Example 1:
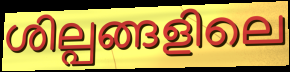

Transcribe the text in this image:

ശില്പങ്ങളിലെ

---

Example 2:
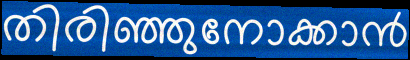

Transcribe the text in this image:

തിരിഞ്ഞുനോക്കാൻ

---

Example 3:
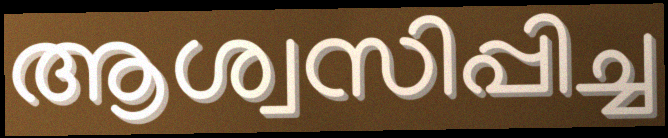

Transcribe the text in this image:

ആശ്വസിപ്പിച്ച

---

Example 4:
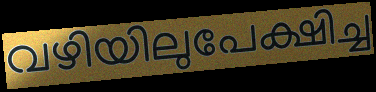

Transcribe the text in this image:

വഴിയിലുപേക്ഷിച്ച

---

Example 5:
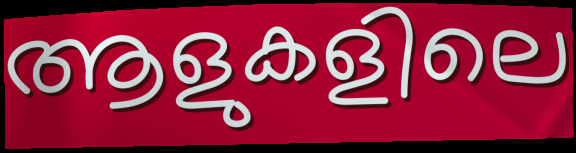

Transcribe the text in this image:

ആളുകളിലെ